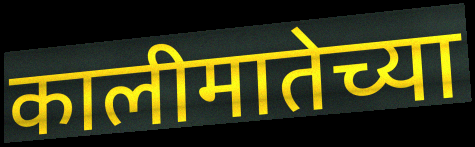
कालीमातेच्या